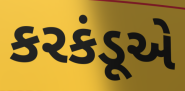
કરકંડૂએ